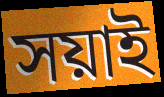
সয়াই